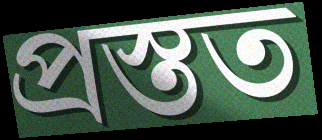
প্ৰস্তত